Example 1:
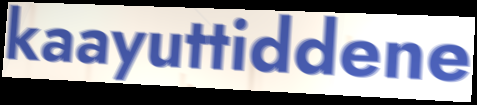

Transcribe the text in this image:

kaayuttiddene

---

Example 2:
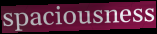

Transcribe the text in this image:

spaciousness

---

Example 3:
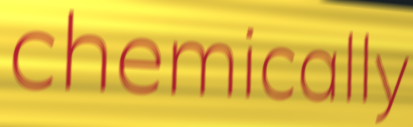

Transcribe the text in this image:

chemically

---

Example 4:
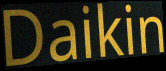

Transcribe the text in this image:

Daikin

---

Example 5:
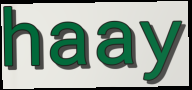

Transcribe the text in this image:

haay